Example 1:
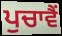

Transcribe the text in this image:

ਪੁਚਾਵੈਂ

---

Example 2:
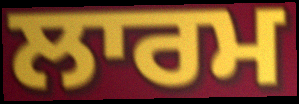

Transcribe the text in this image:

ਲਾਰਮ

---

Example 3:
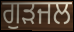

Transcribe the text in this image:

ਗੁੜਜਲ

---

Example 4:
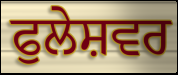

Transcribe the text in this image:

ਫੁਲੇਸ਼ਵਰ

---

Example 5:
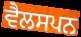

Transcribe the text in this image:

ਵੈਲਸਪਨ